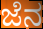
ಜೆನ